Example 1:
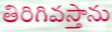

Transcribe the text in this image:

తిరిగివస్తాను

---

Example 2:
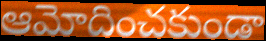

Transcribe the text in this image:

ఆమోదించకుండా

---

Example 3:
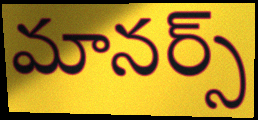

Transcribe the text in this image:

మానర్స్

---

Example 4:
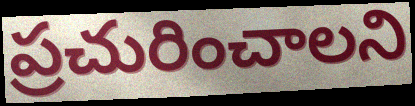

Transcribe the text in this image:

ప్రచురించాలని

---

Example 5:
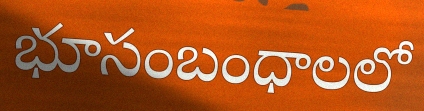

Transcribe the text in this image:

భూసంబంధాలలో